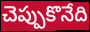
చెప్పుకొనేది